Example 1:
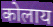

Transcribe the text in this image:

कोलाय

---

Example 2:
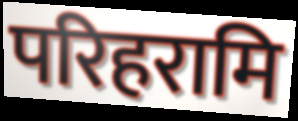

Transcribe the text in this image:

परिहरामि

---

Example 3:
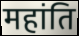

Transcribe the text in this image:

महांति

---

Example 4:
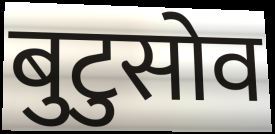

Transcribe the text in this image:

बुटुसोव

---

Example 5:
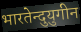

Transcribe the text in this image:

भारतेन्दुयुगीन